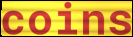
coins